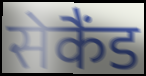
सेकैंड